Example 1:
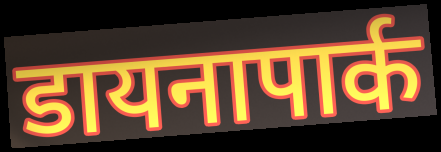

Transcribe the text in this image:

डायनापार्क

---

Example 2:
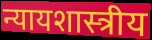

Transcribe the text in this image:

न्यायशास्त्रीय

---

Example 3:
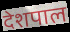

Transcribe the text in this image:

देशपाल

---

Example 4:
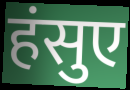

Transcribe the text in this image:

हंसुए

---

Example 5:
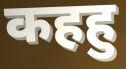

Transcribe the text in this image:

कहहु